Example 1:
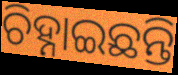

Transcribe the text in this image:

ଚିହ୍ନାଇଛନ୍ତି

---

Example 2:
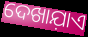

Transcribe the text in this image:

ଦେଖାଯ଼ାଏ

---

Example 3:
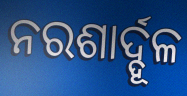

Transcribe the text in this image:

ନରଶାର୍ଦ୍ଦୂଳ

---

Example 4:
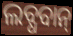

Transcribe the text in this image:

ଲବ୍ଧବାନ୍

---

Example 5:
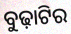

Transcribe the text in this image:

ବୁଢ଼ାଟିର